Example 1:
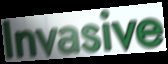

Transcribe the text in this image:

Invasive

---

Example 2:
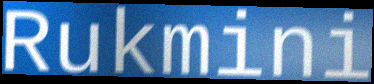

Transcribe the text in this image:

Rukmini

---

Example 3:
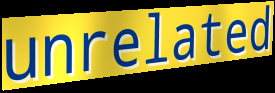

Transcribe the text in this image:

unrelated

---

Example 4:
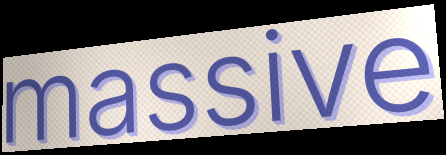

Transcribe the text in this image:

massive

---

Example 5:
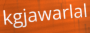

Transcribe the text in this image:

kgjawarlal